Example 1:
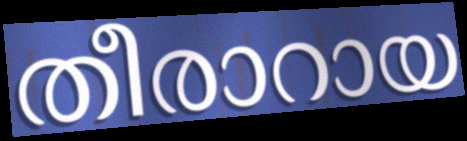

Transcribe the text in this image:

തീരാറായ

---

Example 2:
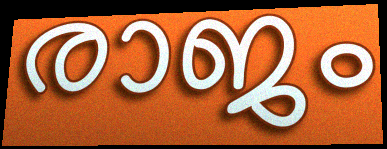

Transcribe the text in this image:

രാജം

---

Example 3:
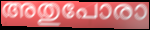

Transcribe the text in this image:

അതുപോരാ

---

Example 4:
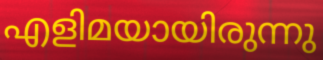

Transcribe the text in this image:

എളിമയായിരുന്നു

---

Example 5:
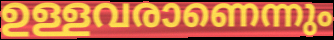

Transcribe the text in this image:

ഉള്ളവരാണെന്നും